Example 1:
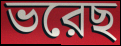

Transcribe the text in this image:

ভরেছ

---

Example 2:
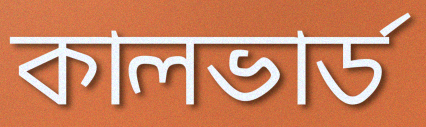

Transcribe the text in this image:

কালভার্ড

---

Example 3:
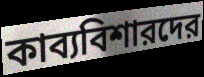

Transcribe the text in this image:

কাব্যবিশারদের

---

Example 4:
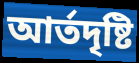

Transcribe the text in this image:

আর্তদৃষ্টি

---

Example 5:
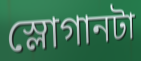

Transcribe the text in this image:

স্লোগানটা